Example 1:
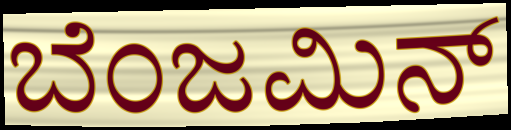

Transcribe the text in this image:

ಬೆಂಜಮಿನ್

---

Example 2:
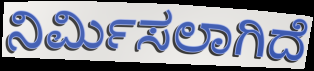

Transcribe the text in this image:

ನಿರ್ಮಿಸಲಾಗಿದೆ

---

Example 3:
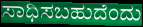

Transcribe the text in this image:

ಸಾಧಿಸಬಹುದೆಂದು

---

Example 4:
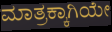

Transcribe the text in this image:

ಮಾತ್ರಕ್ಕಾಗಿಯೇ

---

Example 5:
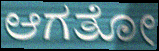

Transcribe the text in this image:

ಆಗತೋ